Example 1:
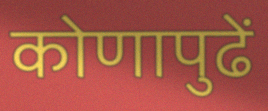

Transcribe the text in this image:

कोणापुढें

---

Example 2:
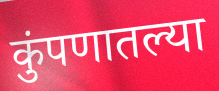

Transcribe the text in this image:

कुंपणातल्या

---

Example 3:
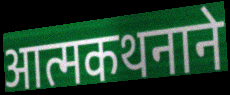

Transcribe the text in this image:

आत्मकथनाने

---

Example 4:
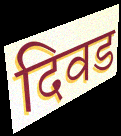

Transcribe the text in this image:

दिवड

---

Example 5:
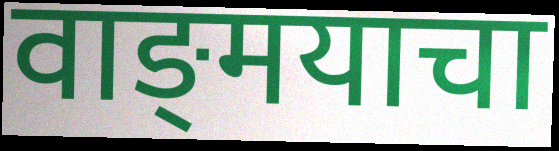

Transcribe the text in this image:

वाङ्मयाचा